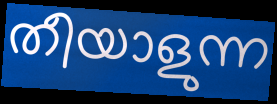
തീയാളുന്ന